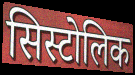
सिस्टोलिक